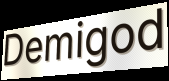
Demigod